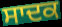
ਸਾਦਕ